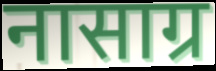
नासाग्र